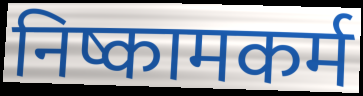
निष्कामकर्म